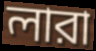
লারা